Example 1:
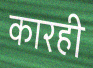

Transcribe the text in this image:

कारही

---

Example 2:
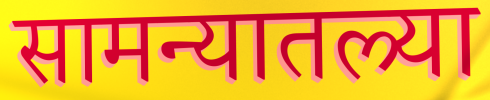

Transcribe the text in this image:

सामन्यातल्या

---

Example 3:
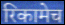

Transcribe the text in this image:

रिकामेच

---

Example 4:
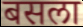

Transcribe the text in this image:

बसला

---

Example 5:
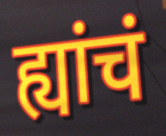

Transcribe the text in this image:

ह्यांचं